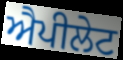
ਐਪੀਲੇਟ